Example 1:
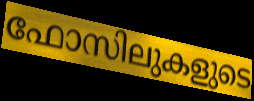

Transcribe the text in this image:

ഫോസിലുകളുടെ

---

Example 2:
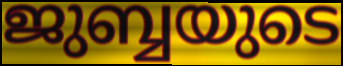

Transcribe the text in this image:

ജുബ്ബയുടെ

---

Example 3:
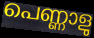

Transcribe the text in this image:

പെണ്ണാളു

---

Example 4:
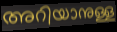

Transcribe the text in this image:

അറിയാനുള്ള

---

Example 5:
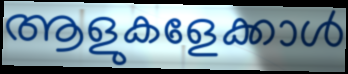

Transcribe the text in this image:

ആളുകളേക്കാൾ